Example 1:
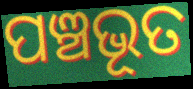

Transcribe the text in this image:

ପଞ୍ଚଭୂତ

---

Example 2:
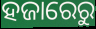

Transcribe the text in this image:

ହଜାରେରୁ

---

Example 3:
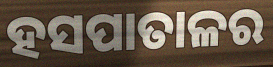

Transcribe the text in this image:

ହସପାତାଳର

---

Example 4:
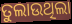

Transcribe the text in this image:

ତୁଲାଉଥିଲା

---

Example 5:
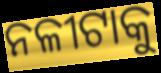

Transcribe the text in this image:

ନଳୀଟାକୁ